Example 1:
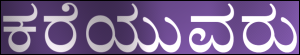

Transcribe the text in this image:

ಕರೆಯುವರು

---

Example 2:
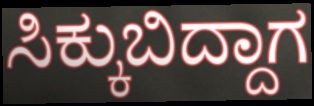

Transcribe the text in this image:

ಸಿಕ್ಕುಬಿದ್ದಾಗ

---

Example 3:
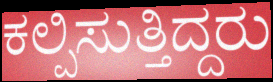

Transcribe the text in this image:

ಕಲ್ಪಿಸುತ್ತಿದ್ದರು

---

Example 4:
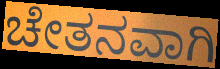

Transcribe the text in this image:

ಚೇತನವಾಗಿ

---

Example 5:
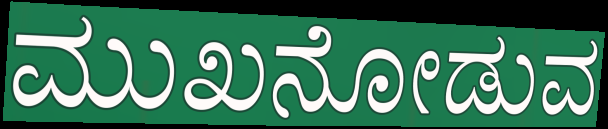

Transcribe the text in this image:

ಮುಖನೋಡುವ